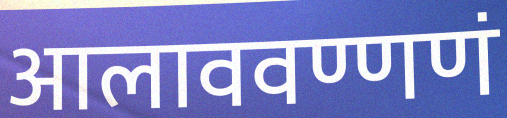
आलाववण्णणं